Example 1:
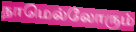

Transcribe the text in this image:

நாமெல்லோரும்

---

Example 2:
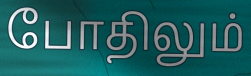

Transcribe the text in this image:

போதிலும்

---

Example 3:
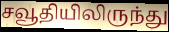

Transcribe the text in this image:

சவூதியிலிருந்து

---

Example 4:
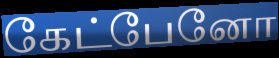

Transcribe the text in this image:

கேட்பேனோ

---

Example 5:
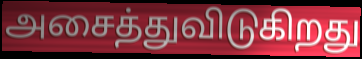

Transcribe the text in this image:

அசைத்துவிடுகிறது